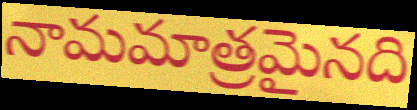
నామమాత్రమైనది